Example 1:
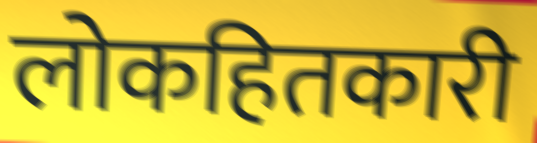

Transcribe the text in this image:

लोकहितकारी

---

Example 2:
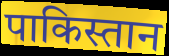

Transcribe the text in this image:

पाकिस्तान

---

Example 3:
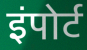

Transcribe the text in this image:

इंपोर्ट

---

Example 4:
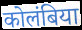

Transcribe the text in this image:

कोलंबिया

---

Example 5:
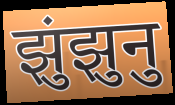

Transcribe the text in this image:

झुंझुनु